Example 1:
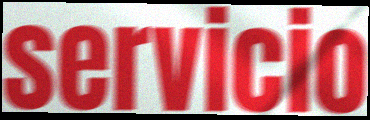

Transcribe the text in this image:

servicio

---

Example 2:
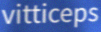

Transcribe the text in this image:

vitticeps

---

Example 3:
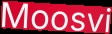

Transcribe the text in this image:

Moosvi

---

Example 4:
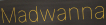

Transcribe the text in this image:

Madwanna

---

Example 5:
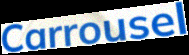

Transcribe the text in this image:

Carrousel